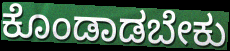
ಕೊಂಡಾಡಬೇಕು